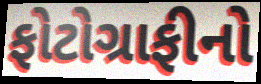
ફોટોગ્રાફીનો